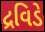
દ્રવિડે